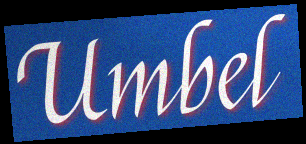
Umbel